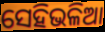
ସେହିଭଳିଆ